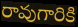
రావుగారికి